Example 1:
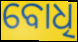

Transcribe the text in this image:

ବୋଧି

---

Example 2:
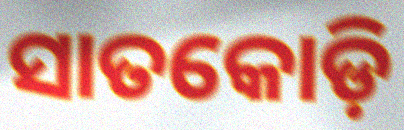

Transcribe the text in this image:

ସାତକୋଡ଼ି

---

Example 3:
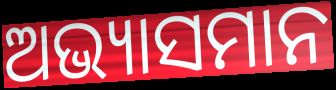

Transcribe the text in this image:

ଅଭ୍ୟାସମାନ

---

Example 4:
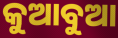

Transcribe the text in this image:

କୁଆବୁଆ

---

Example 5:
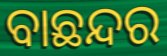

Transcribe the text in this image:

ବାଛନ୍ଦର